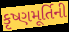
કૃષ્ણમૂર્તિની